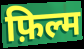
फ़िल्म